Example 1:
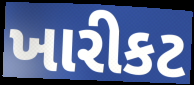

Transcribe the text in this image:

ખારીકટ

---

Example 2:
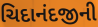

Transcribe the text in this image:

ચિદાનંદજીની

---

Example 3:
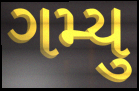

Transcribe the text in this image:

ગમ્યુ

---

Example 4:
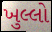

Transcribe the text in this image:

ખુલ્લો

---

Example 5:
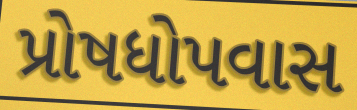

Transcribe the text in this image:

પ્રોષધોપવાસ